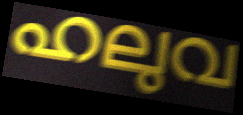
ഹലുവ